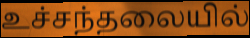
உச்சந்தலையில்